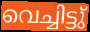
വെച്ചിട്ടു്